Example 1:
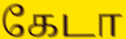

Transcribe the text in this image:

கேடா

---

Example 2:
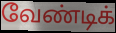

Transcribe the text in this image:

வேண்டிக்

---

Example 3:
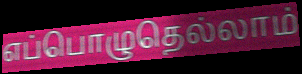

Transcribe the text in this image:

எப்பொழுதெல்லாம்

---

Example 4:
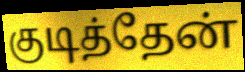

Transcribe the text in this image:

குடித்தேன்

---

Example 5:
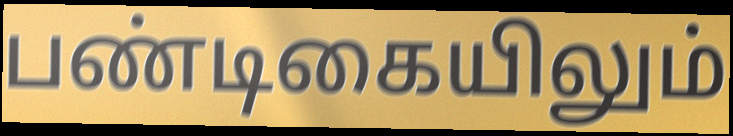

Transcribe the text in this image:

பண்டிகையிலும்